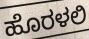
ಹೊರಳಲಿ